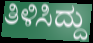
ತಿಳಿಸಿದ್ದು